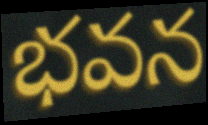
భవన